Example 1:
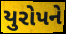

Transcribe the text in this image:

યુરોપને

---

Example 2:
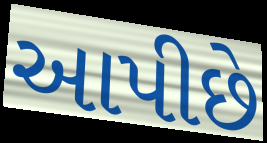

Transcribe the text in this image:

આપીછે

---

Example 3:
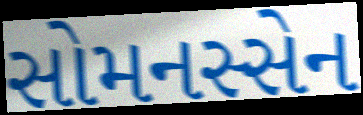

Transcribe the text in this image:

સોમનસ્સેન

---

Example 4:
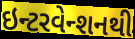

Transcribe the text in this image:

ઇન્ટરવેન્શનથી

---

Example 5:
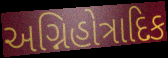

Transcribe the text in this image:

અગ્નિહોત્રાદિક